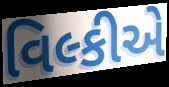
વિલ્કીએ